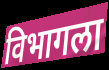
विभागला